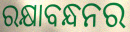
ରକ୍ଷାବନ୍ଧନର